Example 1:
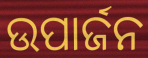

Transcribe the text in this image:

ଉପାର୍ଜନ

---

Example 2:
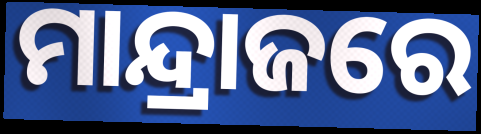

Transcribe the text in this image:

ମାନ୍ଦ୍ରାଜରେ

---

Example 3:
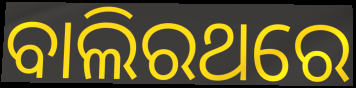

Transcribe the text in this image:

ବାଲିରଥରେ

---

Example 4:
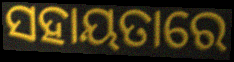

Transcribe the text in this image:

ସହାୟତାରେ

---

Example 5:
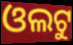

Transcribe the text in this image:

ଓଲଟୁ